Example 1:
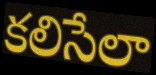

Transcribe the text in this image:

కలిసేలా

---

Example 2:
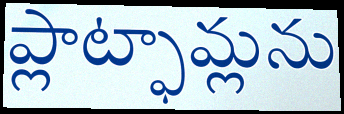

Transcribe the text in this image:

ప్లాట్ఫామ్లను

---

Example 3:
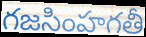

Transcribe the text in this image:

గజసింహగతీ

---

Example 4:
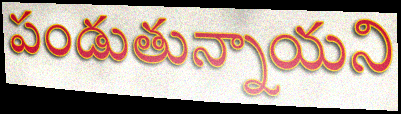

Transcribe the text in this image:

పండుతున్నాయని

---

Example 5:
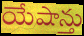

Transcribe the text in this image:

యేషాన్తు